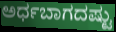
ಅರ್ಧಬಾಗದಷ್ಟು